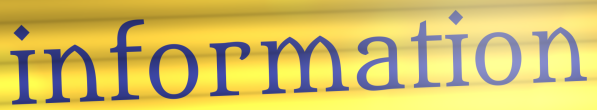
information